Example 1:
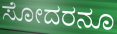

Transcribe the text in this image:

ಸೋದರನೂ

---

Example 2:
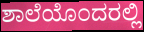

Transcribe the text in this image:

ಶಾಲೆಯೊಂದರಲ್ಲಿ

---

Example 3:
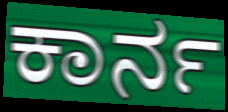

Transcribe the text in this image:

ಕಾರ್ನ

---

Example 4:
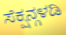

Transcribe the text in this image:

ಸೆಕ್ಷನ್ಗಳಡಿ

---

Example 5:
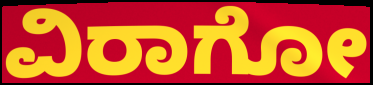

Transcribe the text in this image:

ವಿರಾಗೋ